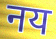
नय